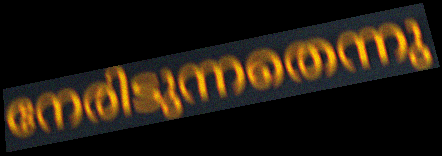
നേരിടുന്നതെന്നു